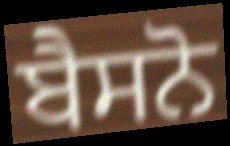
ਬੈਸਨੋ